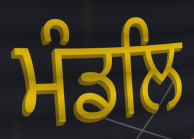
ਮੰਡਲਿ